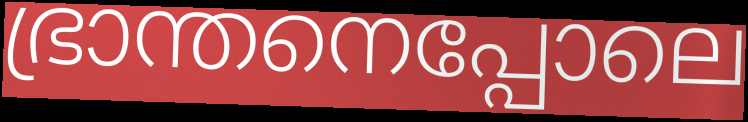
ഭ്രാന്തനെപ്പോലെ